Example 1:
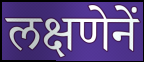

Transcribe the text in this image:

लक्षणेनें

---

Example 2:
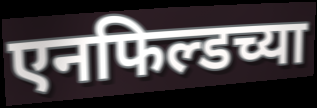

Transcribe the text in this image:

एनफिल्डच्या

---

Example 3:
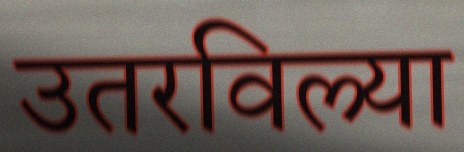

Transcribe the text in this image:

उतरविल्या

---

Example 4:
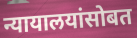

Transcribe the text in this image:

न्यायालयांसोबत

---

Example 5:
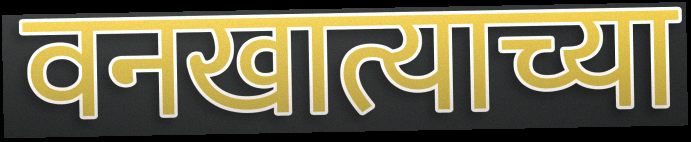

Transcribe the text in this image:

वनखात्याच्या